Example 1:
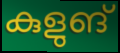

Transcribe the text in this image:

കുളുങ്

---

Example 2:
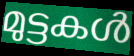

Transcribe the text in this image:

മുട്ടകൾ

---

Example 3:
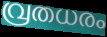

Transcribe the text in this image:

വ്രതധരം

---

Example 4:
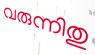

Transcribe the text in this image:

വരുന്നിതു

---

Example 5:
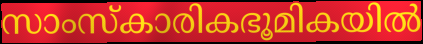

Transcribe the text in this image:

സാംസ്കാരികഭൂമികയിൽ